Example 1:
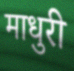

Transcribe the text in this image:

माधुरी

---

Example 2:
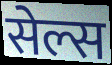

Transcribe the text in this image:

सेल्स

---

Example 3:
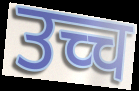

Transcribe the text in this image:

उच्‍च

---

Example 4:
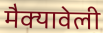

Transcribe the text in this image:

मैक्यावेली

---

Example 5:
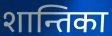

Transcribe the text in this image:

शान्तिका